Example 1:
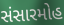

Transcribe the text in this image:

સંસારમોહ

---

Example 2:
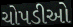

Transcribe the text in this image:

ચોપડીઓ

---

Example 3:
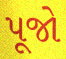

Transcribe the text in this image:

પૂજો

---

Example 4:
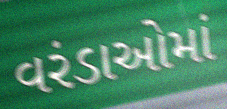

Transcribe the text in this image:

વરંડાઓમાં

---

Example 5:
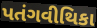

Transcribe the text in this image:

પતંગવીથિકા